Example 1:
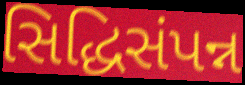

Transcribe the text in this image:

સિદ્ધિસંપન્ન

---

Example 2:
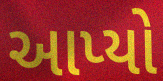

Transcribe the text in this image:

આપ્યો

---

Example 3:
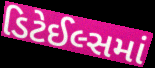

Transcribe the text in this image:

ડિટેઈલ્સમાં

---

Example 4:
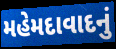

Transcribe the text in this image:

મહેમદાવાદનું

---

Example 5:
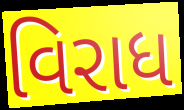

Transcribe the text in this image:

વિરાધ